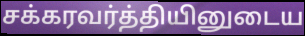
சக்கரவர்த்தியினுடைய